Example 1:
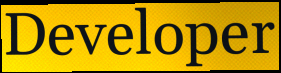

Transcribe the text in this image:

Developer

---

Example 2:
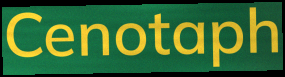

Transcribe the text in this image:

Cenotaph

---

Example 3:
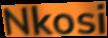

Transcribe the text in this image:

Nkosi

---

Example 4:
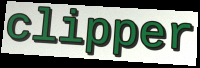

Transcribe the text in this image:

clipper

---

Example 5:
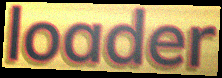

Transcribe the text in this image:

loader